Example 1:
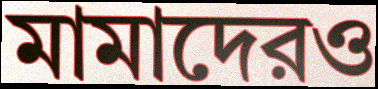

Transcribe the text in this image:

মামাদেরও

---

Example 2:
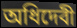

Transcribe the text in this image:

অধিদেবী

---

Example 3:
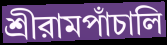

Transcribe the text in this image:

শ্রীরামপাঁচালি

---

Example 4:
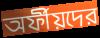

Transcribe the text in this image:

অর্ফীয়দের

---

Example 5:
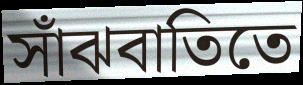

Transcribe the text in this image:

সাঁঝবাতিতে